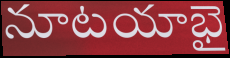
నూటయాభై